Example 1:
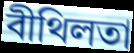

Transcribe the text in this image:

বীথিলতা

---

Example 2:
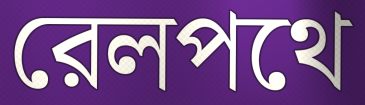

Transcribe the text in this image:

রেলপথে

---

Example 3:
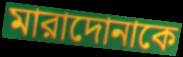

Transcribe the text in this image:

মারাদোনাকে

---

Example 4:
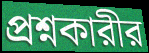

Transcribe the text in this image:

প্রশ্নকারীর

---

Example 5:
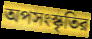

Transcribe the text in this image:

অপসংস্কৃতির